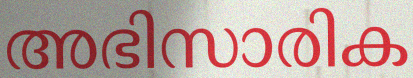
അഭിസാരിക